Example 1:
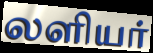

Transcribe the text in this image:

லளியர்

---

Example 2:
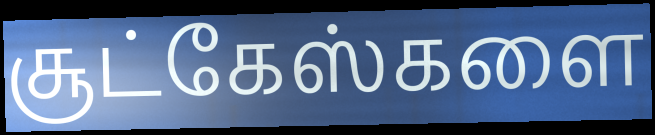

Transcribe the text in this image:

சூட்கேஸ்களை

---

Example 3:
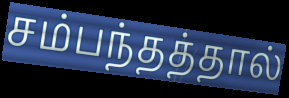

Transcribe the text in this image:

சம்பந்தத்தால்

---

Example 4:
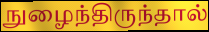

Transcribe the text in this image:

நுழைந்திருந்தால்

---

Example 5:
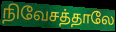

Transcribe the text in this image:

நிவேசத்தாலே